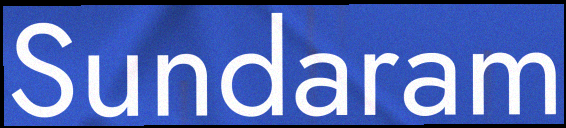
Sundaram